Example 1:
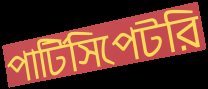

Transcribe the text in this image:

পার্টিসিপেটরি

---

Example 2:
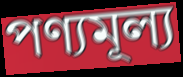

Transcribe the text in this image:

পণ্যমূল্য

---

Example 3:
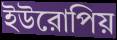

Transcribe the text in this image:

ইউরোপিয়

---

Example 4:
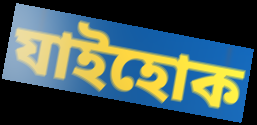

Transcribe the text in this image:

যাইহোক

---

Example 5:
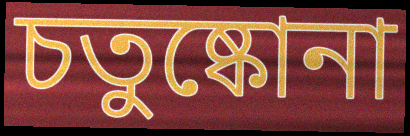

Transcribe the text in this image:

চতুষ্কোনা